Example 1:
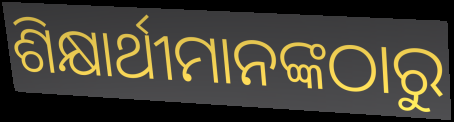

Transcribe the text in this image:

ଶିକ୍ଷାର୍ଥୀମାନଙ୍କଠାରୁ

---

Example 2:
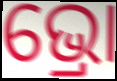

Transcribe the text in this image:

ଭ୍ରୋ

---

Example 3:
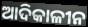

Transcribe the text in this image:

ଆଦିକାଳୀନ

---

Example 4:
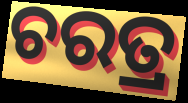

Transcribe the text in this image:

ଚରତ୍ର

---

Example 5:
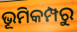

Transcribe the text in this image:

ଭୂମିକମ୍ପରୁ